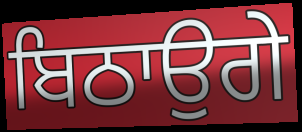
ਬਿਠਾਉਗੇ